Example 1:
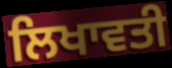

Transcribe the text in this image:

ਲਿਖਾਵਤੀ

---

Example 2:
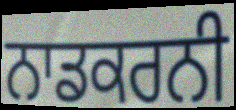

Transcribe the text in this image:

ਨਾਡਕਰਨੀ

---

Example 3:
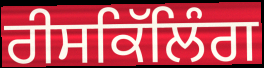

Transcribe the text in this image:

ਰੀਸਕਿੱਲਿੰਗ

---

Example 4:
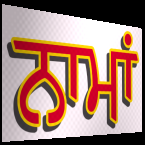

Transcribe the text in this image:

ਨਾਮਾਂ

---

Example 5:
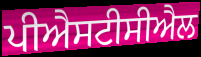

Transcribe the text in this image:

ਪੀਐਸਟੀਸੀਐਲ